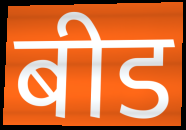
बीड